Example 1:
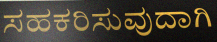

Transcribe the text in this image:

ಸಹಕರಿಸುವುದಾಗಿ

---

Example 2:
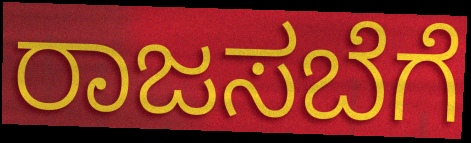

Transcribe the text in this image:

ರಾಜಸಬೆಗೆ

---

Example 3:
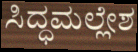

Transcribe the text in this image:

ಸಿದ್ಧಮಲ್ಲೇಶ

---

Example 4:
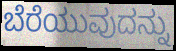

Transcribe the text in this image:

ಬೆರೆಯುವುದನ್ನು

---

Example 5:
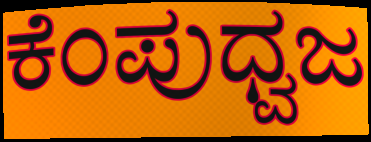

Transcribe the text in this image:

ಕೆಂಪುಧ್ವಜ